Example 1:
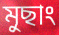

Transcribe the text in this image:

মুছাং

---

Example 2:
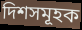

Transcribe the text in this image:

দিশসমূহক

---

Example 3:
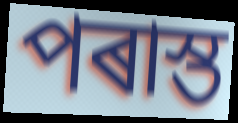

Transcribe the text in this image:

পৰাস্ত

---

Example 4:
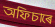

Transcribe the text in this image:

অফিচাৰে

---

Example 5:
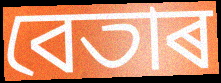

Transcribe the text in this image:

বেতাৰ